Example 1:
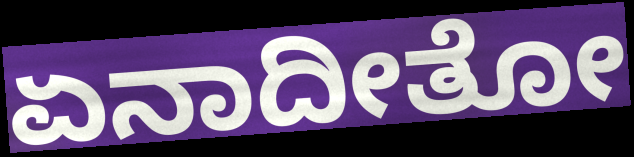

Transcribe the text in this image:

ಏನಾದೀತೋ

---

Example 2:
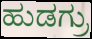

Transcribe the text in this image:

ಹುಡಗ್ರು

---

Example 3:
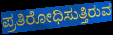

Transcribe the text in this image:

ಪ್ರತಿರೋಧಿಸುತ್ತಿರುವ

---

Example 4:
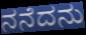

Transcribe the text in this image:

ನನೆದನು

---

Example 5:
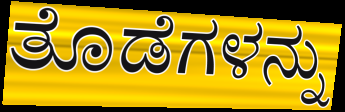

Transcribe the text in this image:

ತೊಡೆಗಳನ್ನು